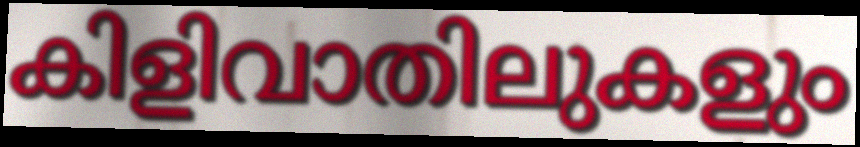
കിളിവാതിലുകളും